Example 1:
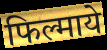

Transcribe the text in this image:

फिल्माये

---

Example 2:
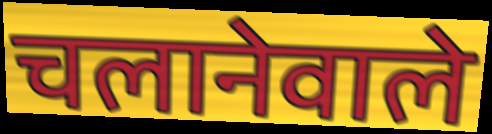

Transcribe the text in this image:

चलानेवाले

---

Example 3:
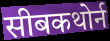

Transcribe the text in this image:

सीबकथोर्न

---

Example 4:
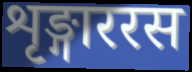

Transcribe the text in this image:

शृङ्गाररस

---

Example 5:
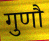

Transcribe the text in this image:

गुणौ